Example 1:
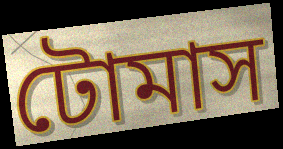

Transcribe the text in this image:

টোমাস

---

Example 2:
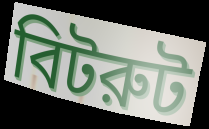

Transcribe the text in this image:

বিটরুট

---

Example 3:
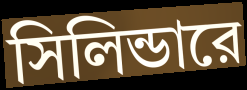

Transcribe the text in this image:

সিলিন্ডারে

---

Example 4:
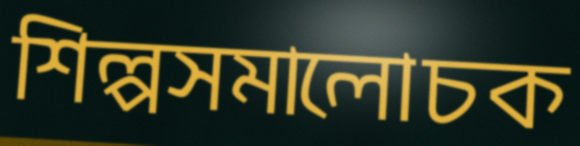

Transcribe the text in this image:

শিল্পসমালোচক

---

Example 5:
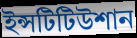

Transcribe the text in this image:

ইন্সটিটিউশান